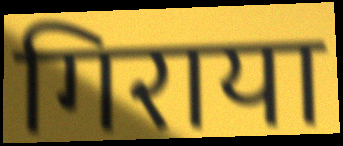
गिराया